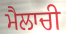
ਮੈਲਾਚੀ